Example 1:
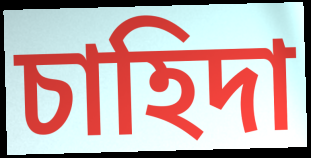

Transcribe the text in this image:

চাহিদা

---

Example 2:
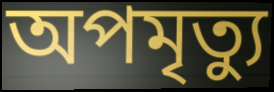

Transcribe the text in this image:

অপমৃত্যু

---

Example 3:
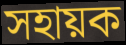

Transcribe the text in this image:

সহায়ক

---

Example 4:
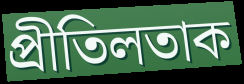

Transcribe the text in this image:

প্ৰীতিলতাক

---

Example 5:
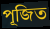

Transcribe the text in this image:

পূজিত